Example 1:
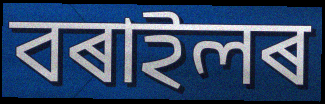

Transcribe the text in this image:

বৰাইলৰ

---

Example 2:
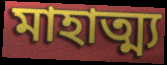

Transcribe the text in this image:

মাহাত্ম্য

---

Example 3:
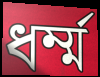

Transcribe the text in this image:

ধৰ্ম্ম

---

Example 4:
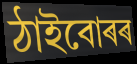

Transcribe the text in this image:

ঠাইবোৰৰ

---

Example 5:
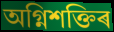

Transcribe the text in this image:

অগ্নিশক্তিৰ